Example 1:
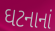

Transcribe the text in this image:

ઘટનાનાં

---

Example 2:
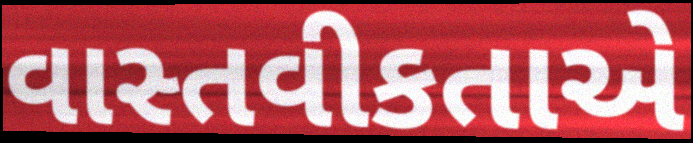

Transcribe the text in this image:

વાસ્તવીકતાએ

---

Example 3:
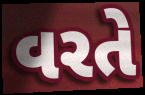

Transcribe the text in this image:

વરતે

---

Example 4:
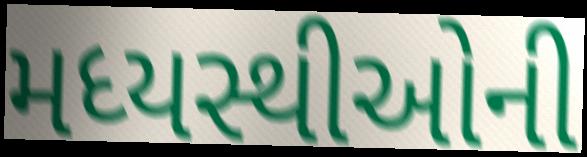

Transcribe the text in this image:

મધ્યસ્થીઓની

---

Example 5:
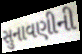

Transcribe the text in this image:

સુનાવણીની